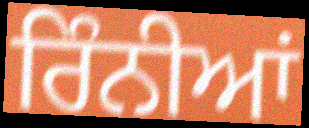
ਰਿੰਨੀਆਂ